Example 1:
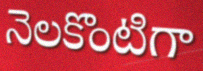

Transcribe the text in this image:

నెలకొంటిగా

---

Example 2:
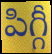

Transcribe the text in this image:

పిగ్గీ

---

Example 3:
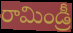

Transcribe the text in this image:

రామిండ్రీ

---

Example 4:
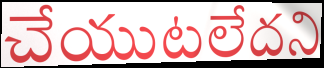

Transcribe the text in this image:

చేయుటలేదని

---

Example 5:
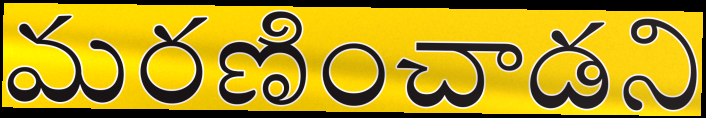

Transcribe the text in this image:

మరణించాడని